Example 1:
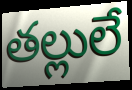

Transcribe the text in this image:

తల్లులే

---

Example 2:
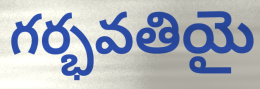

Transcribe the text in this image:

గర్భవతియై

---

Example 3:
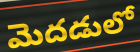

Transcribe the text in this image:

మెదడులో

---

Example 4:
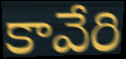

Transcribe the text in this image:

కావేరి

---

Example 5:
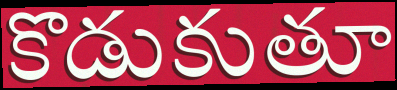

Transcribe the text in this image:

కొడుకుతూ